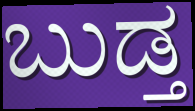
ಬುಡ್ತ